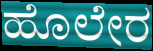
ಹೊಲೇರ